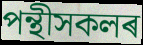
পন্থীসকলৰ